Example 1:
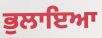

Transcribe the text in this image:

ਭੁਲਾਇਆ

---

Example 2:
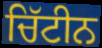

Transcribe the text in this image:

ਚਿੱਟੀਨ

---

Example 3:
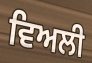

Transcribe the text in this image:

ਵਿਅਲੀ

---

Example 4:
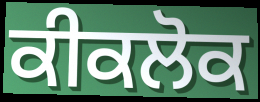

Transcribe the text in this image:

ਕੀਕਲੋਕ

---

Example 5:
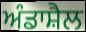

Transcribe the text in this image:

ਅੰਡਾਸ਼ੈਲ